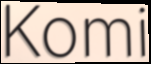
Komi